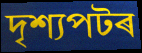
দৃশ্যপটৰ